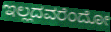
ಇಲ್ಲದವರೆಂದೋ